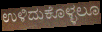
ಉಳಿದುಕೊಳ್ಳಲೂ